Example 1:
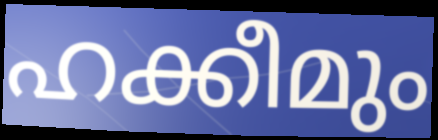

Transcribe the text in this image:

ഹക്കീമും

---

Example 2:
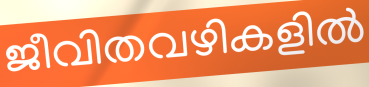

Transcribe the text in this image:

ജീവിതവഴികളിൽ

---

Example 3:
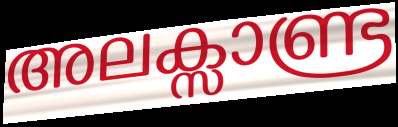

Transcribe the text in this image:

അലക്സാണ്ട്ര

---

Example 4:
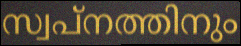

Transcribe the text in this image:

സ്വപ്നത്തിനും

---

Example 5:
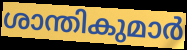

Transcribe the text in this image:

ശാന്തികുമാർ